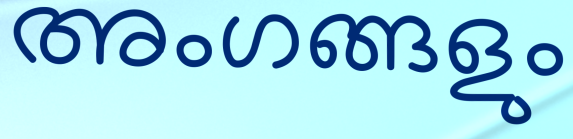
അംഗങ്ങളും